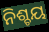
ନିଶ୍ଚୟ